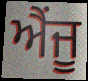
ਐਂਜੂ